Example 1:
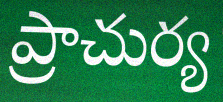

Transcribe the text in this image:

ప్రాచుర్య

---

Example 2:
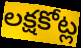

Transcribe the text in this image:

లక్షకోట్ల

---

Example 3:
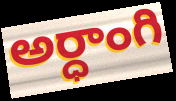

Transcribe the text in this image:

అర్ధాంగి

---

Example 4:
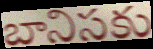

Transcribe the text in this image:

బానిసకు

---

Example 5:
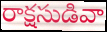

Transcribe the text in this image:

రాక్షసుడివా